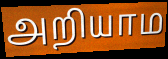
அறியாம